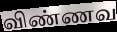
விண்ணவ